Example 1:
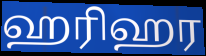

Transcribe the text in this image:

ஹரிஹர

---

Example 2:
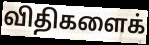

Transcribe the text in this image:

விதிகளைக்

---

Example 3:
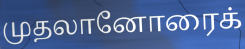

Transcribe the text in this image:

முதலானோரைக்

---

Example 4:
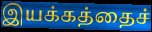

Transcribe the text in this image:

இயக்கத்தைச்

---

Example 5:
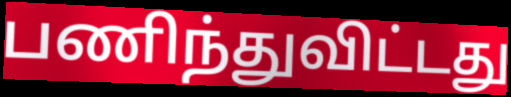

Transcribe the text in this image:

பணிந்துவிட்டது